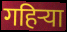
गहिऱ्या